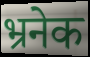
भ्रनेक